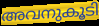
അവനുകൂടി